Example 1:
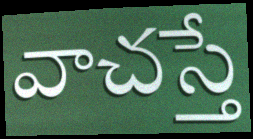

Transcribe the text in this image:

వాచస్తే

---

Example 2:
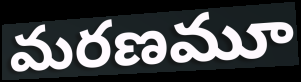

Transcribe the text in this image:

మరణమూ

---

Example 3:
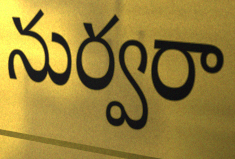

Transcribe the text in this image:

నుర్వరా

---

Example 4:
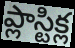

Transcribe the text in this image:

ప్లాస్టిక్ల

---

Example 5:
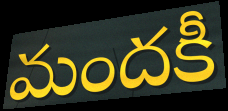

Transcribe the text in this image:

మందకీ